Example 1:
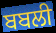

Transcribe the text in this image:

ਬਬਲੀ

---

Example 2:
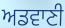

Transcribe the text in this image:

ਅਡਵਾਣੀ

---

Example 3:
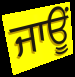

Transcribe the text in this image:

ਜਾਊਂ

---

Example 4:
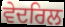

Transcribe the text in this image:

ਵੇਦਰਿਲ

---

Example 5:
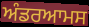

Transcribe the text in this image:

ਅੰਡਰਆਮਸ